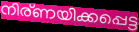
നിര്ണയിക്കപ്പെട്ട